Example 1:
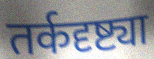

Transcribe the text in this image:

तर्कदृष्ट्या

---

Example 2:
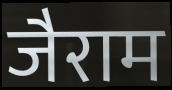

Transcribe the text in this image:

जैराम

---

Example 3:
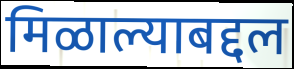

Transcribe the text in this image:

मिळाल्याबद्दल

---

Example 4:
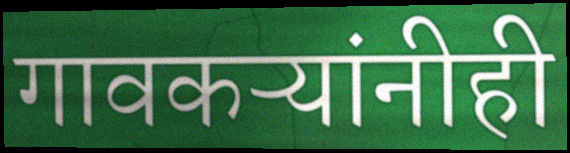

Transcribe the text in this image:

गावकऱ्यांनीही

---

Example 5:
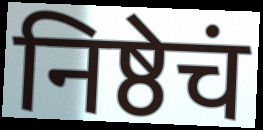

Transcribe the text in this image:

निष्ठेचं